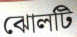
ঝোলটি